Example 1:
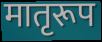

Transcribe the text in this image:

मातृरूप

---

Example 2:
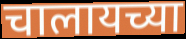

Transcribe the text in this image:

चालायच्या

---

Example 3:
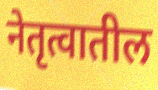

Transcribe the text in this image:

नेतृत्वातील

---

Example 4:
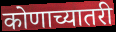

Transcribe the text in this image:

कोणाच्यातरी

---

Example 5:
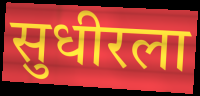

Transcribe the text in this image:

सुधीरला